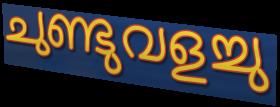
ചുണ്ടുവളച്ചു